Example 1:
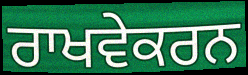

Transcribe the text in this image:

ਰਾਖਵੇਕਰਨ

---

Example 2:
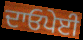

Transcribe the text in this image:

ਦਾਓਪੇਈ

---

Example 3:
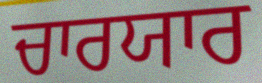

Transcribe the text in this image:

ਚਾਰਯਾਰ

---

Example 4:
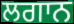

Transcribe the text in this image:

ਲਗਾਨ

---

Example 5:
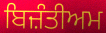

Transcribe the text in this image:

ਬਿਜ਼ੰਤੀਅਮ